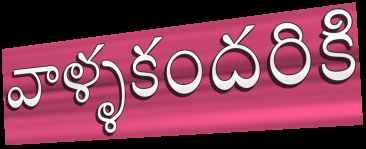
వాళ్ళకందరికి